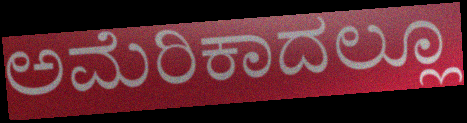
ಅಮೆರಿಕಾದಲ್ಲೂ